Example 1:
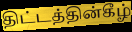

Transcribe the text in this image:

திட்டத்தின்கீழ்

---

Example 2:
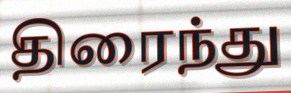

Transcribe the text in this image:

திரைந்து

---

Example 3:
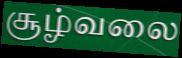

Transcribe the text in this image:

சூழ்வலை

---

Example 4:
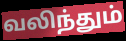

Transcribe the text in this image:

வலிந்தும்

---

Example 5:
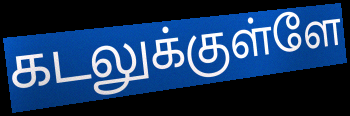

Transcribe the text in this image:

கடலுக்குள்ளே